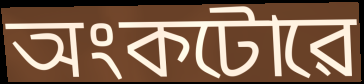
অংকটোৱে